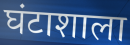
घंटाशाला